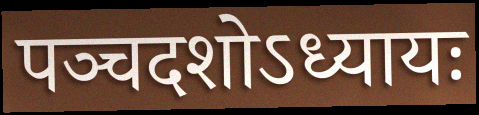
पञ्चदशोऽध्यायः